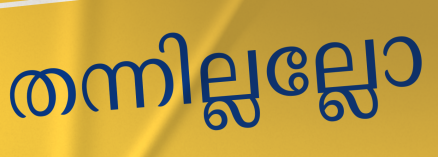
തന്നില്ലല്ലോ